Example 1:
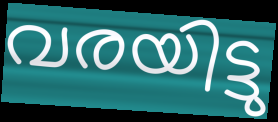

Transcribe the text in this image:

വരയിട്ടു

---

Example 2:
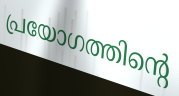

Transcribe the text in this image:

പ്രയോഗത്തിന്റെ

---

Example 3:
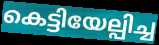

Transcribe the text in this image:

കെട്ടിയേല്പിച്ച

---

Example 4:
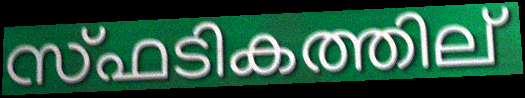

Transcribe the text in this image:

സ്ഫടികത്തില്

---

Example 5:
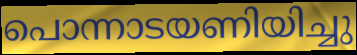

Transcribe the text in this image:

പൊന്നാടയണിയിച്ചു